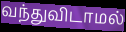
வந்துவிடாமல்